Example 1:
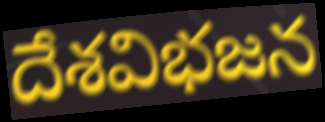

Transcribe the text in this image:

దేశవిభజన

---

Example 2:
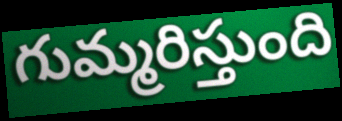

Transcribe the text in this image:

గుమ్మరిస్తుంది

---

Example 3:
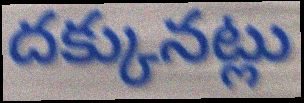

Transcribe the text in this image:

దక్కునట్లు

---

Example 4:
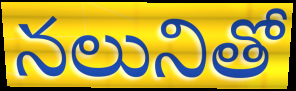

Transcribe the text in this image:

నలునితో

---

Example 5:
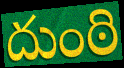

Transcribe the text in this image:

దుంఠి